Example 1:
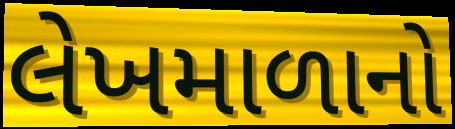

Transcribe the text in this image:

લેખમાળાનો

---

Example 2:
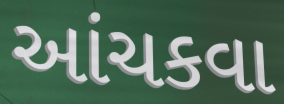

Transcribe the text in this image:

આંચકવા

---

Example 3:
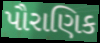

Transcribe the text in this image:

પૌરાણિક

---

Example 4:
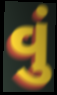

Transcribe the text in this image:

વું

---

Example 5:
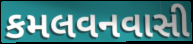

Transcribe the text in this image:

કમલવનવાસી